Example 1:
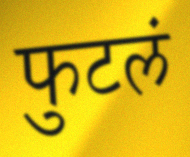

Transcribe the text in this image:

फुटलं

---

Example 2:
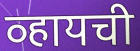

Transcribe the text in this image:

व्हायची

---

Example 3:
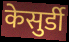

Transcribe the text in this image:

केसुर्डी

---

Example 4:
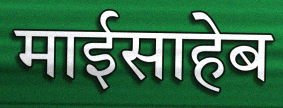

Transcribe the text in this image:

माईसाहेब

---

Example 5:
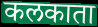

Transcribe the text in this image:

कलकाता